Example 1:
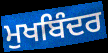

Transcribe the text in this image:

ਮੁਖਬਿੰਦਰ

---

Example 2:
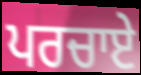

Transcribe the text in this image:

ਪਰਚਾਏ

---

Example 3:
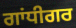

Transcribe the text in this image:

ਗਾਂਧੀਗਰ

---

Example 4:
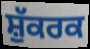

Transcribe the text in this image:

ਸ਼ੁੱਕਰਕ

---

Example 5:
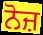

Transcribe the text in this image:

ਨੋਜ਼